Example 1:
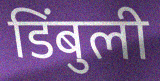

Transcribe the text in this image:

डिंबुली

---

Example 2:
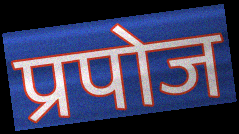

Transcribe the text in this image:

प्रपोज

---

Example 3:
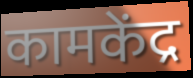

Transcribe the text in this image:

कामकेंद्र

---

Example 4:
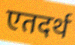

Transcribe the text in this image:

एतदर्थ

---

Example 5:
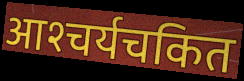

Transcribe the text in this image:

आश्चर्यचकित